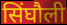
सिंघौली